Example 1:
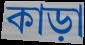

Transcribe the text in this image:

কাড়া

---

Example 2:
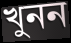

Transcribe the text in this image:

খুনন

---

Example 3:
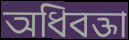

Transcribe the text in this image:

অধিবক্তা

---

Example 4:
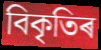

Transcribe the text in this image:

বিকৃতিৰ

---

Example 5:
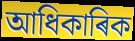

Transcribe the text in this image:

আধিকাৰিক